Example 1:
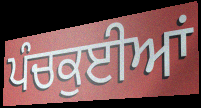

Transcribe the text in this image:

ਪੰਚਕੁਈਆਂ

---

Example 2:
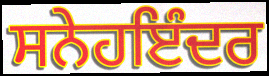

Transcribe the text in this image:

ਸਨੇਹਇੰਦਰ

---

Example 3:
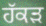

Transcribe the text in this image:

ਹੱਕੜ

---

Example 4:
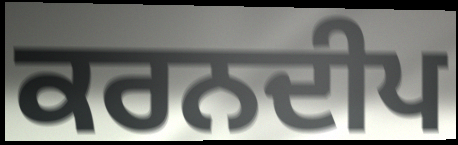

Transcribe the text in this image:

ਕਰਨਦੀਪ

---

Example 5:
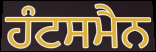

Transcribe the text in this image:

ਹੰਟਸਮੈਨ